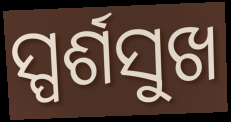
ସ୍ପର୍ଶସୁଖ